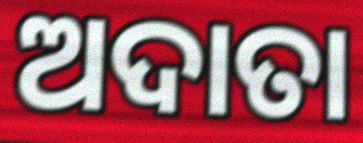
ଅଦାତା